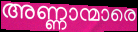
അണ്ണാന്മാരെ